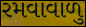
રમવાવાળુ